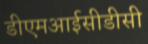
डीएमआईसीडीसी